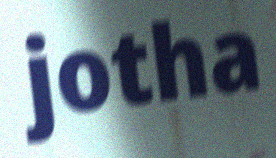
jotha